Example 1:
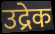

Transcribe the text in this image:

उद्रेक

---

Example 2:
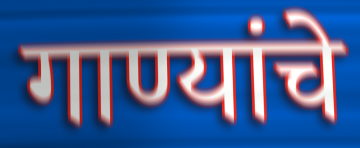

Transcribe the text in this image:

गाण्यांचे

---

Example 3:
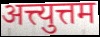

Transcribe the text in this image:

अत्त्युत्तम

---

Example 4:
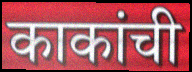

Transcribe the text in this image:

काकांची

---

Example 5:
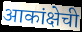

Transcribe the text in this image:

आकांक्षेची